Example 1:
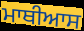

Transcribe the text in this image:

ਮਾਥੀਆਸ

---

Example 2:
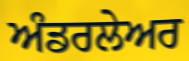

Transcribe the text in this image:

ਅੰਡਰਲੇਅਰ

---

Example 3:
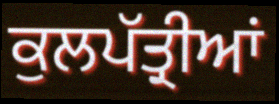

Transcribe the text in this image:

ਕੁਲਪੱਤ੍ਰੀਆਂ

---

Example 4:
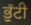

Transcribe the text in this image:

ਭੁੱਟੀ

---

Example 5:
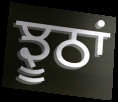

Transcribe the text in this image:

ਝੂਠਾਂ